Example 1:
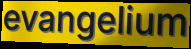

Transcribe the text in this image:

evangelium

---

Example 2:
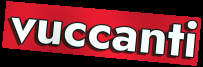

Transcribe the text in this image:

vuccanti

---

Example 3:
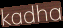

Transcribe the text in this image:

kadha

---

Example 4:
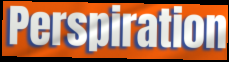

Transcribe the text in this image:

Perspiration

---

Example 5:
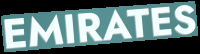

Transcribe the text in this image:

EMIRATES